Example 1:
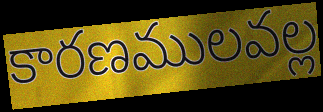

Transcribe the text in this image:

కారణములవల్ల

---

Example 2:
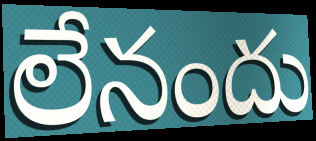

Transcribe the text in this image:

లేనందు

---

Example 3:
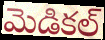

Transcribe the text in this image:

మెడికల్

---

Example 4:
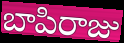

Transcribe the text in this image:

బాపిరాజు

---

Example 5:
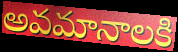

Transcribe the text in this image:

అవమానాలకి